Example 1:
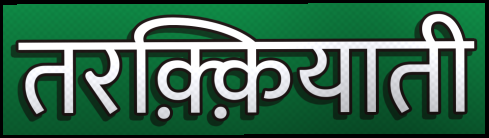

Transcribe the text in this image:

तरक़्क़ियाती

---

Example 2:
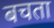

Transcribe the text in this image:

बचता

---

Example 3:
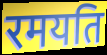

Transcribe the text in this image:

रमयति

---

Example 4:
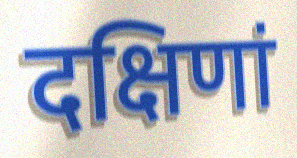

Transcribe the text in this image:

दक्षिणां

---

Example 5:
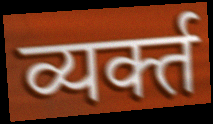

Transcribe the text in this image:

व्यर्क्त